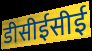
डीसीईसीई